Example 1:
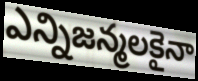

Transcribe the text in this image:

ఎన్నిజన్మలకైనా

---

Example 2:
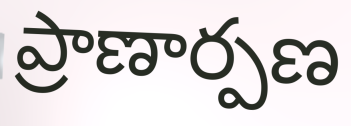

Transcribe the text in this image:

ప్రాణార్పణ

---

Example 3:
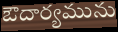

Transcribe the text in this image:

ఔదార్యమును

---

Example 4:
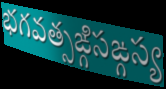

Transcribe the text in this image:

భగవత్సఙ్గిసఙ్గస్య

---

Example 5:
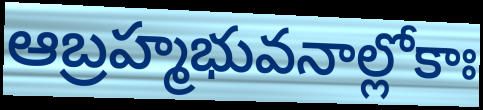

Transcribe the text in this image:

ఆబ్రహ్మభువనాల్లోకాః